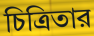
চিত্রিতার